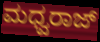
ಮಧ್ವರಾಜ್